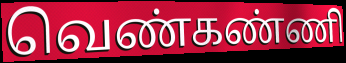
வெண்கண்ணி